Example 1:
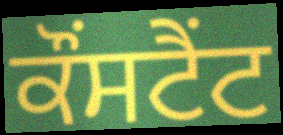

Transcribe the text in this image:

ਕੌਂਸਟੈਂਟ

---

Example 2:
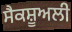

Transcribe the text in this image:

ਸੈਕਸ਼ੂਅਲੀ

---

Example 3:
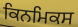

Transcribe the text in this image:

ਕਿਨਮਿਕਸ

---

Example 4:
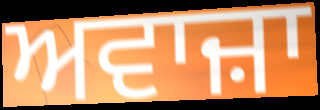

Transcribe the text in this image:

ਅਵਾਜ਼ਾ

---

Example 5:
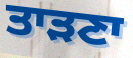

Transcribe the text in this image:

ਤਾੜਣਾ